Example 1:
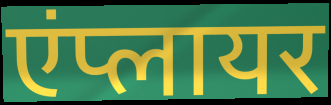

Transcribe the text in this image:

एंप्लायर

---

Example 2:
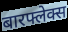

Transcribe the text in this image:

बारफ्लेक्स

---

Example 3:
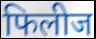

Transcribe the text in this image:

फिलीज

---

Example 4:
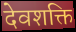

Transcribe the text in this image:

देवशक्ति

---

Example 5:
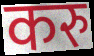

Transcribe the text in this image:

करु